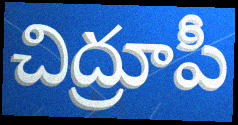
చిద్రూపీ